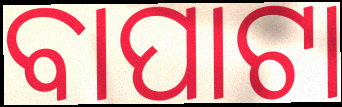
ବାପାଟା